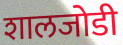
शालजोडी